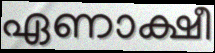
ഏണാക്ഷീ